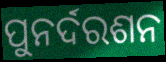
ପୁନର୍ଦରଶନ